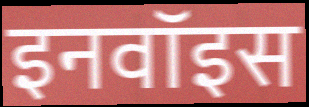
इनवॉइस